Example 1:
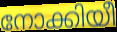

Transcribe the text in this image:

നോക്കിയീ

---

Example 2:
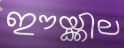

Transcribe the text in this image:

ഈയ്ക്കില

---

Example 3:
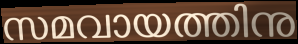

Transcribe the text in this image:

സമവായത്തിനു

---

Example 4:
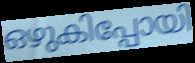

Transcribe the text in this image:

ഒഴുകിപ്പോയി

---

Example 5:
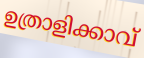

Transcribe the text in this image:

ഉത്രാളിക്കാവ്